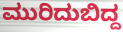
ಮುರಿದುಬಿದ್ದ